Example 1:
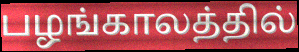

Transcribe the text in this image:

பழங்காலத்தில்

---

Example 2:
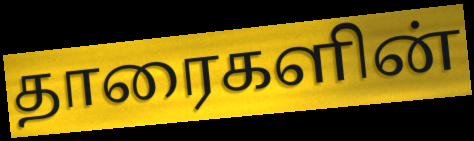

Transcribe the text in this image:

தாரைகளின்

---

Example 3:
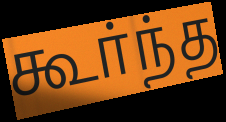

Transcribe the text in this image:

கூர்ந்த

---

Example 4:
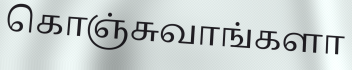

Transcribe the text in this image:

கொஞ்சுவாங்களா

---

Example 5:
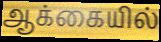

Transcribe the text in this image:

ஆக்கையில்